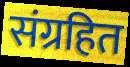
संग्रहित